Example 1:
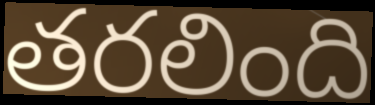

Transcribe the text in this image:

తరలింది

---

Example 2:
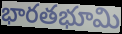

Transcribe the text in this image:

భారతభూమి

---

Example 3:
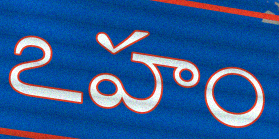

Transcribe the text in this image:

ఽహం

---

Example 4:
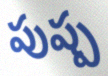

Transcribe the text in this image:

పుష్ప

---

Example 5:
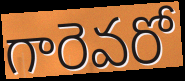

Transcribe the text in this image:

గారెవరో